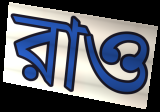
রাও